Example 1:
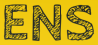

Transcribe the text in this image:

ENS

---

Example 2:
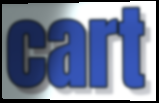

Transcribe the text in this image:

cart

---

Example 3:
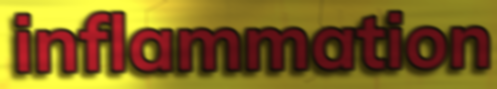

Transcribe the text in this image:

inflammation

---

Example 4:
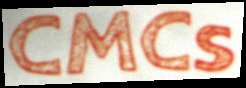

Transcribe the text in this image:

CMCs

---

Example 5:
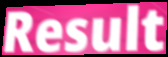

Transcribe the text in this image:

Result